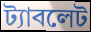
ট্যাবলেট